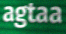
agtaa